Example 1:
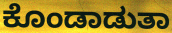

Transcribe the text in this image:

ಕೊಂಡಾಡುತಾ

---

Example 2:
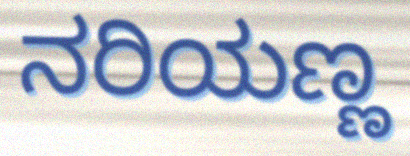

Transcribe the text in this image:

ನರಿಯಣ್ಣ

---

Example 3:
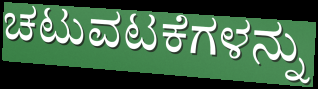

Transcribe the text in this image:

ಚಟುವಟಕೆಗಳನ್ನು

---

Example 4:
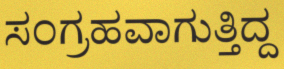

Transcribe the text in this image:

ಸಂಗ್ರಹವಾಗುತ್ತಿದ್ದ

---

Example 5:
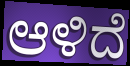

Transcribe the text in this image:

ಆಳಿದೆ